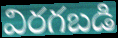
విరగబడి